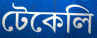
টেকেলি